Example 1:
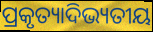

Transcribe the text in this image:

ପ୍ରକୃତ୍ୟାଦିଭ୍ୟତୀୟ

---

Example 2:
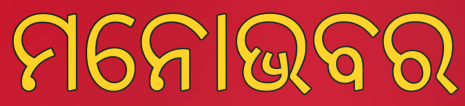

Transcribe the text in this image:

ମନୋଭବର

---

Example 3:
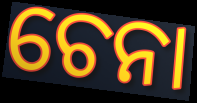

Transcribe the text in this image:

ଚେନା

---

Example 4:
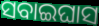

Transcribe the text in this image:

ସବାଇଘାସ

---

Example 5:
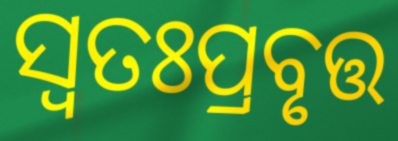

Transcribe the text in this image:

ସ୍ୱତଃପ୍ରବୃତ୍ତ